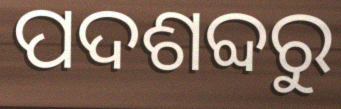
ପଦଶବ୍ଦରୁ